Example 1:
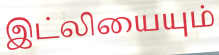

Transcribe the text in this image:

இட்லியையும்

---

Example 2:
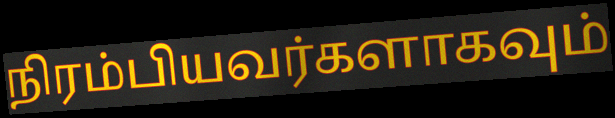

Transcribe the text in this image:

நிரம்பியவர்களாகவும்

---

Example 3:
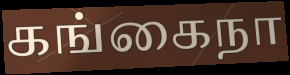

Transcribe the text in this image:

கங்கைநா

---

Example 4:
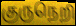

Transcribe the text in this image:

குருநெறி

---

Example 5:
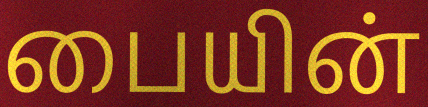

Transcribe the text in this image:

பையின்